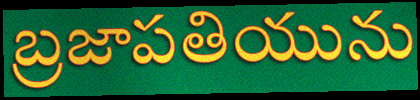
బ్రజాపతియును